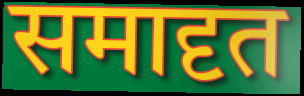
समादृत